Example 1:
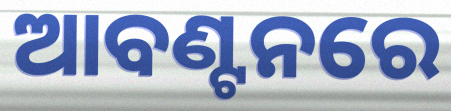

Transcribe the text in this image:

ଆବଣ୍ଟନରେ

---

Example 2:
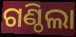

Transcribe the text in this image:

ଗଣ୍ଠିଲା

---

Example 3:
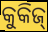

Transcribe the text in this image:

କୁକିଜ୍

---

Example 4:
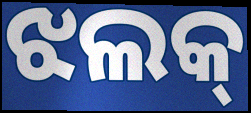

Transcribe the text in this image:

ଝଲକ୍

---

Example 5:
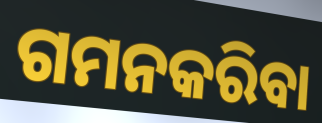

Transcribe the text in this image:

ଗମନକରିବା